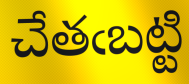
చేతఁబట్టి